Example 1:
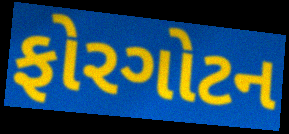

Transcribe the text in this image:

ફોરગોટન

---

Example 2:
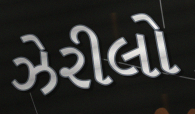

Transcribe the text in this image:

ઝેરીલો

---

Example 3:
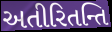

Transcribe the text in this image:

અતીરિતન્તિ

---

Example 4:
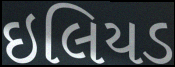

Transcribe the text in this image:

ઇલિયડ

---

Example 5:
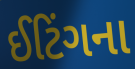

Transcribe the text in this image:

ઈટિંગના